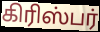
கிரிஸ்பர்